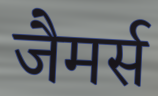
जैमर्स